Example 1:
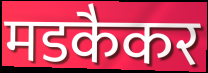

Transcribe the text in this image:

मडकैकर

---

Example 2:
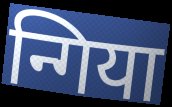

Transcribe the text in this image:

न्गिया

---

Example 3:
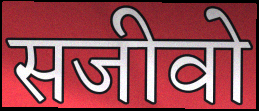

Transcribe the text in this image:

सजीवो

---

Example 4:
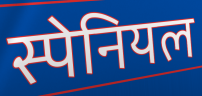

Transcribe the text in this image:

स्पेनियल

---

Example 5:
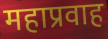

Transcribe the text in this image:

महाप्रवाह